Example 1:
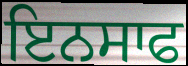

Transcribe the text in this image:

ਇਨਸਾਫ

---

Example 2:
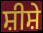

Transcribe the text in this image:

ਸ਼ੀਸ਼ੇ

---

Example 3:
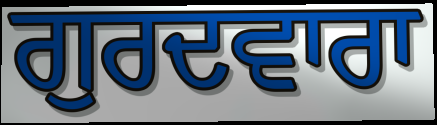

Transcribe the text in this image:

ਗੁਰਦਵਾਰਾ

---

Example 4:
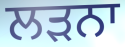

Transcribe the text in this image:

ਲੜਨਾ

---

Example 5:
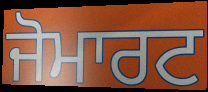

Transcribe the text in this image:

ਜੋਮਾਰਟ